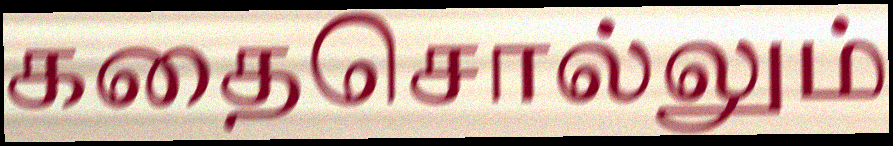
கதைசொல்லும்